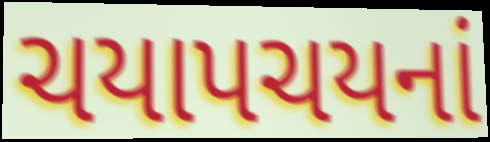
ચયાપચયનાં